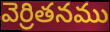
వెర్రితనము